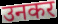
उनकर